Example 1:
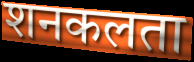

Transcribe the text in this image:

शनकलता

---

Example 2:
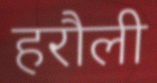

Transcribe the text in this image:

हरौली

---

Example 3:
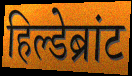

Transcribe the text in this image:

हिल्डेब्रांट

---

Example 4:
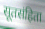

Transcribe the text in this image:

सूतसंहिता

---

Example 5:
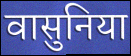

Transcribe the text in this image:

वासुनिया